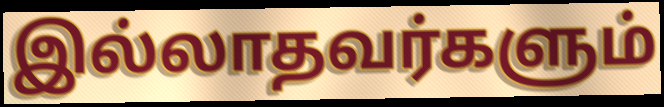
இல்லாதவர்களும்